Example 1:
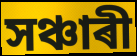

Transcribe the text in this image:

সঞ্চাৰী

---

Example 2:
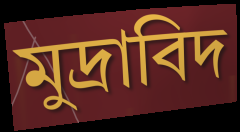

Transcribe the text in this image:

মুদ্ৰাবিদ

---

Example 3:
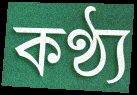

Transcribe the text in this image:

কণ্ঠ্য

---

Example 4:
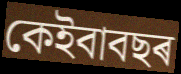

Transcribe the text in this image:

কেইবাবছৰ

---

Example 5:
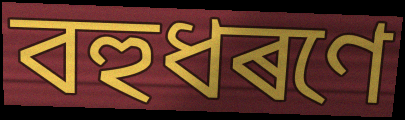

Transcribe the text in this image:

বহুধৰণে